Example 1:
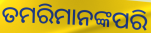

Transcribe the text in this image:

ତମରିମାନଙ୍କପରି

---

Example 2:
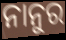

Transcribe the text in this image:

ନାନୁର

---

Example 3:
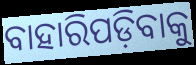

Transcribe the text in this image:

ବାହାରିପଡ଼ିବାକୁ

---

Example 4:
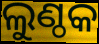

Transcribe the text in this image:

ଲୁଣ୍ଠକ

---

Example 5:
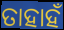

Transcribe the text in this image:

ତାହାହଁ